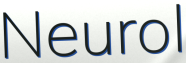
Neurol